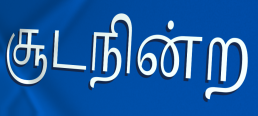
சூடநின்ற